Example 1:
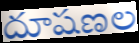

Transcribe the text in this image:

దూషణల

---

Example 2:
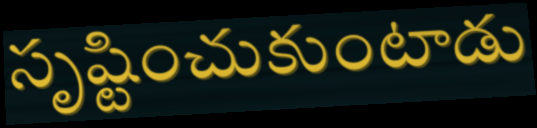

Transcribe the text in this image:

సృష్టించుకుంటాడు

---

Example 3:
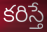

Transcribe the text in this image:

కరిస్తే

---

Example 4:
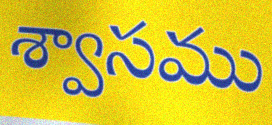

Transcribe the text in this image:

శ్వాసము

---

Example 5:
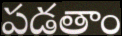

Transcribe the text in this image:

పడతాం